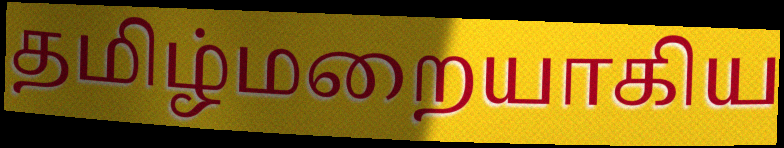
தமிழ்மறையாகிய